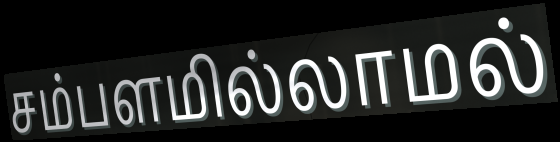
சம்பளமில்லாமல்